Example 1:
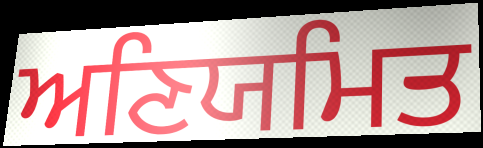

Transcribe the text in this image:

ਅਣਿਯਮਿਤ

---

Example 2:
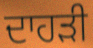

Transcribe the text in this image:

ਦਾਹੜੀ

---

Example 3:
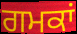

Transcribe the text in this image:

ਗਮਕਾਂ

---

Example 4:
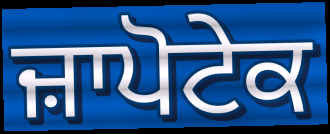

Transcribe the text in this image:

ਜ਼ਾਪੋਟੇਕ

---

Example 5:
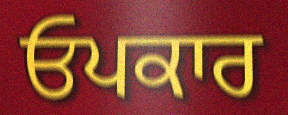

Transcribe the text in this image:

ਓਪਕਾਰ